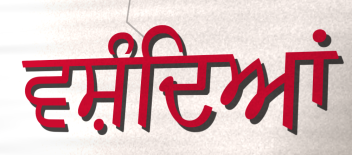
ਵਸ਼ੰਦਿਆਂ